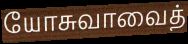
யோசுவாவைத்